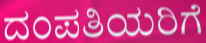
ದಂಪತಿಯರಿಗೆ